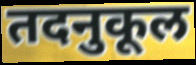
तदनुकूल